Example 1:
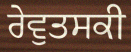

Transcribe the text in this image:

ਰੇਵੁਤਸਕੀ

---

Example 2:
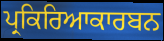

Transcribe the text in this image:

ਪ੍ਰਕਿਰਿਆਕਾਰਬਨ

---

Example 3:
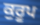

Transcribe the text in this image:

ਕੁਰੂਪ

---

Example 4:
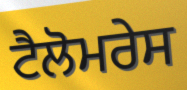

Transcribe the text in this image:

ਟੈਲੋਮਰੇਸ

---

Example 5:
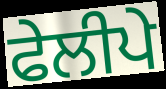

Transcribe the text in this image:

ਫੇਲੀਪੇ